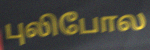
புலிபோல